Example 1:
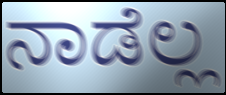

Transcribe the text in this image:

ನಾಡೆಲ್ಲ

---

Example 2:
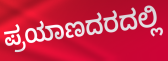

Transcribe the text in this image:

ಪ್ರಯಾಣದರದಲ್ಲಿ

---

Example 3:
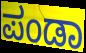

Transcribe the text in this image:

ಪಂಡಾ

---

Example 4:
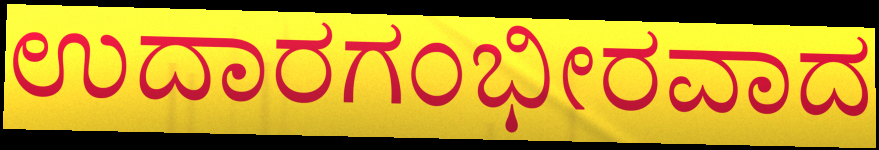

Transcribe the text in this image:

ಉದಾರಗಂಭೀರವಾದ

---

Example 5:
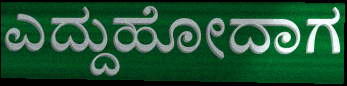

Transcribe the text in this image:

ಎದ್ದುಹೋದಾಗ